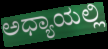
ಅಧ್ಯಾಯಲ್ಲಿ